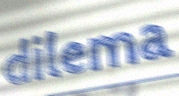
dilema